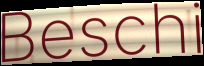
Beschi